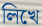
লিখে